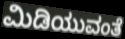
ಮಿಡಿಯುವಂತೆ